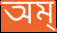
অম্